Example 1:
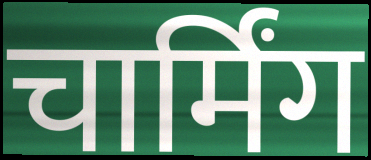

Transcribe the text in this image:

चार्मिंग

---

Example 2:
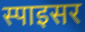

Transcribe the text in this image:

स्पाइसर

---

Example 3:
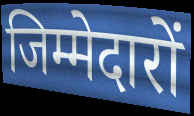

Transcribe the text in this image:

जिम्मेदारों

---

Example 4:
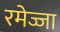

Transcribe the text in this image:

रमेज्जा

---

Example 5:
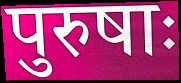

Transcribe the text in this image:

पुरुषाः